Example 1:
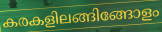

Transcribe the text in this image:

കരകളിലങ്ങിങ്ങോളം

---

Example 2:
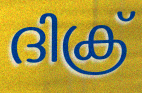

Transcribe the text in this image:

ദിക്ര്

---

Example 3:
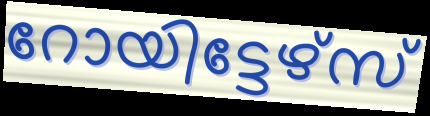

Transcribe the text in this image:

റോയിട്ടേഴ്സ്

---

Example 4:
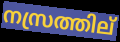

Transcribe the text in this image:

നസ്രത്തില്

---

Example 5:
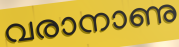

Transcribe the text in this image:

വരാനാണു